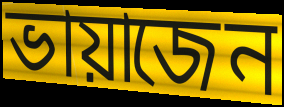
ভায়াজেন